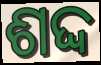
ଶଦ୍ଦ